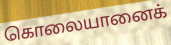
கொலையானைக்